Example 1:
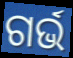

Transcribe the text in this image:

ଗର୍ଭ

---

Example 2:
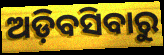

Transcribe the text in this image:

ଅଡ଼ିବସିବାରୁ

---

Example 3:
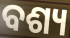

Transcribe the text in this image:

ବଶ୍ୟ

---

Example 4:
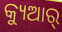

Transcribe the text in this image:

କ୍ୟୁଆର୍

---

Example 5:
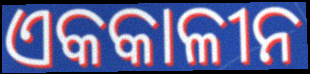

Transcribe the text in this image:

ଏକକାଳୀନ